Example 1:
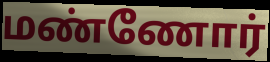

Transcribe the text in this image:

மண்ணோர்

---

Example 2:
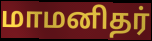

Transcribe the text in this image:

மாமனிதர்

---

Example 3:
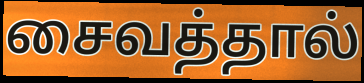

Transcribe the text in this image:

சைவத்தால்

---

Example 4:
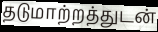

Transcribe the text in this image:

தடுமாற்றத்துடன்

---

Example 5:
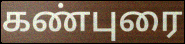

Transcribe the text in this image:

கண்புரை